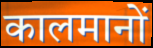
कालमानों